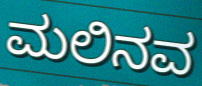
ಮಲಿನವ